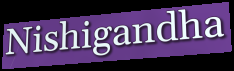
Nishigandha